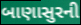
બાણાસુરની